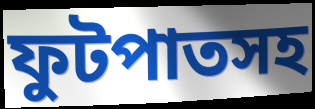
ফুটপাতসহ